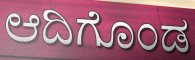
ಆದಿಗೊಂಡ